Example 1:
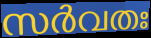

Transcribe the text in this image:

സർവതഃ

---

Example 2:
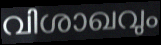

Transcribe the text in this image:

വിശാഖവും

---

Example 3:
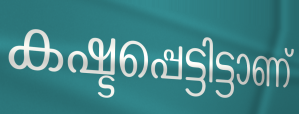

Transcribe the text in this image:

കഷ്ടപ്പെട്ടിട്ടാണ്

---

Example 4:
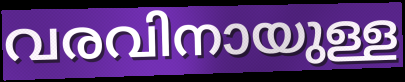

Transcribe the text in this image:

വരവിനായുള്ള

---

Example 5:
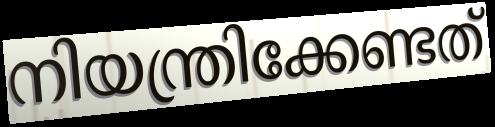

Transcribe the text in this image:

നിയന്ത്രിക്കേണ്ടത്